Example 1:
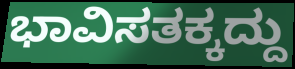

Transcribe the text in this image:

ಭಾವಿಸತಕ್ಕದ್ದು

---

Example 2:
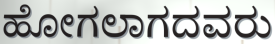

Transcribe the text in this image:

ಹೋಗಲಾಗದವರು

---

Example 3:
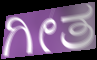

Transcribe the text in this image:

ಗೀತ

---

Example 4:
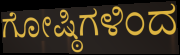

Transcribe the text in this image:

ಗೋಷ್ಠಿಗಳಿಂದ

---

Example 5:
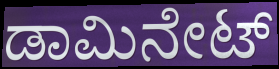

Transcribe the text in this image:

ಡಾಮಿನೇಟ್